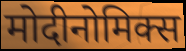
मोदीनोमिक्स